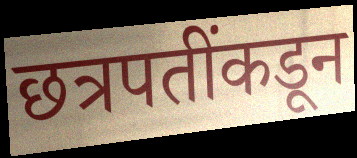
छत्रपतींकडून